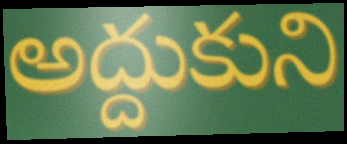
అద్దుకుని